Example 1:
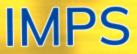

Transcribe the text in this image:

IMPS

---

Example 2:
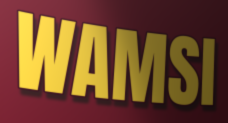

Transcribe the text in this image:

WAMSI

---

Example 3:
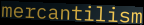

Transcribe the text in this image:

mercantilism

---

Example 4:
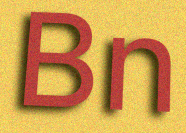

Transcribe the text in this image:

Bn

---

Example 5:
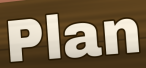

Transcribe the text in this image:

Plan